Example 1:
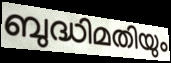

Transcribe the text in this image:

ബുദ്ധിമതിയും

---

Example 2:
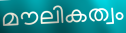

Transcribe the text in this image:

മൗലികത്വം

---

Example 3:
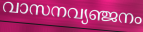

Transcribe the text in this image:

വാസനവ്യഞ്ജനം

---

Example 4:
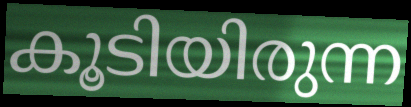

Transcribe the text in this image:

കൂടിയിരുന്ന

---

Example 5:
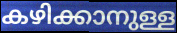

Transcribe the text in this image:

കഴിക്കാനുള്ള